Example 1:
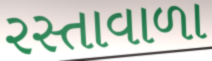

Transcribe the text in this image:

રસ્તાવાળા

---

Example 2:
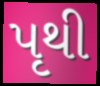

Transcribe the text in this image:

પૃથી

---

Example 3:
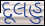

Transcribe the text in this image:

દૂલહુ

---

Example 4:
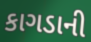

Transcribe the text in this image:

કાગડાની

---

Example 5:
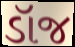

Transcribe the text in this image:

ડૉજ